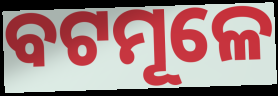
ବଟମୂଳେ